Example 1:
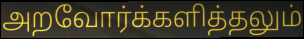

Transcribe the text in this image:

அறவோர்க்களித்தலும்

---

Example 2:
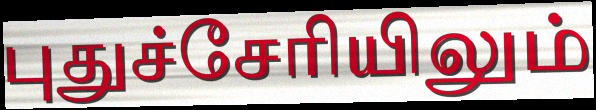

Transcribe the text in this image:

புதுச்சேரியிலும்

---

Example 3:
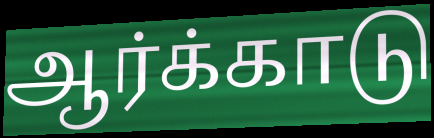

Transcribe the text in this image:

ஆர்க்காடு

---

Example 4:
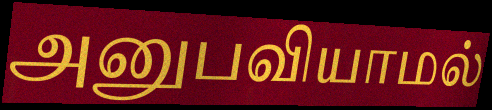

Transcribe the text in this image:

அனுபவியாமல்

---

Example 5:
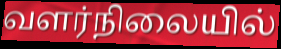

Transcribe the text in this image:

வளர்நிலையில்